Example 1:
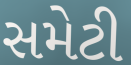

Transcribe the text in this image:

સમેટી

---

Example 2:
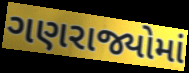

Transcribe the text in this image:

ગણરાજ્યોમાં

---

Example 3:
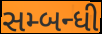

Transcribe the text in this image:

સમ્બન્ધી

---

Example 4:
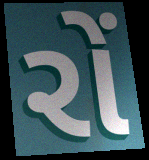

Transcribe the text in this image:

રોં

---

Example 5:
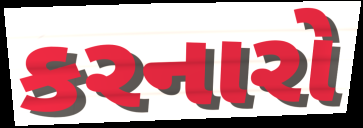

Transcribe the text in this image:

કરનારો